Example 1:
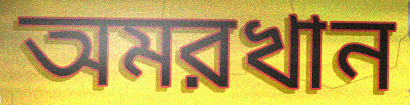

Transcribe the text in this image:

অমরখান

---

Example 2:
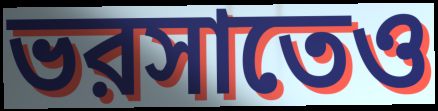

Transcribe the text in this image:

ভরসাতেও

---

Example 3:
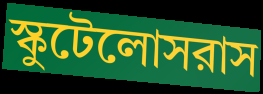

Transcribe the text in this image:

স্কুটেলোসরাস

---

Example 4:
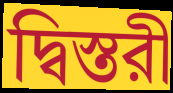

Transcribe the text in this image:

দ্বিস্তরী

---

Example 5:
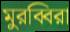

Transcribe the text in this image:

মুরব্বিরা